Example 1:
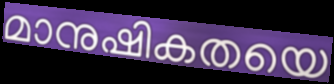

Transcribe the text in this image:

മാനുഷികതയെ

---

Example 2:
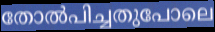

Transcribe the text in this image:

തോൽപിച്ചതുപോലെ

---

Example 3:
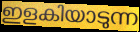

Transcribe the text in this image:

ഇളകിയാടുന്ന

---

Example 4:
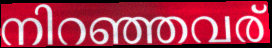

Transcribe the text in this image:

നിറഞ്ഞവര്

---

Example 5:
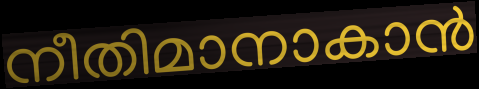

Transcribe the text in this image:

നീതിമാനാകാൻ